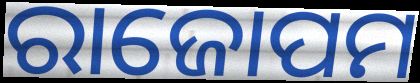
ରାଜୋପମ